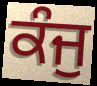
ਕੰਜੁ